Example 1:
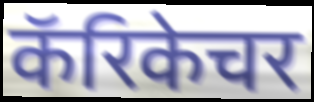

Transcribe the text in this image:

कॅरिकेचर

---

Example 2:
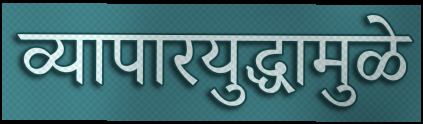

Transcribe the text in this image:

व्यापारयुद्धामुळे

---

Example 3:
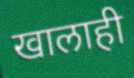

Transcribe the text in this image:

खालाही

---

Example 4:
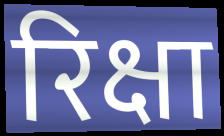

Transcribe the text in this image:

रिक्षा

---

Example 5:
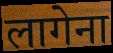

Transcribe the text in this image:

लागेना